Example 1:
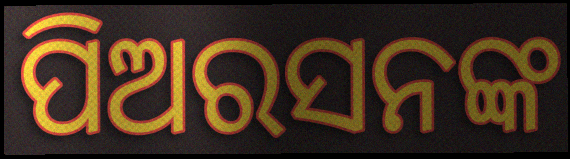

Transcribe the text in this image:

ପିଅରସନଙ୍କ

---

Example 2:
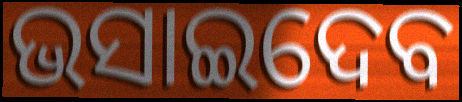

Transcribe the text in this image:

ଭସାଇଦେବ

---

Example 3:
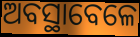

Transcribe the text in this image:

ଅବସ୍ଥାବେଳେ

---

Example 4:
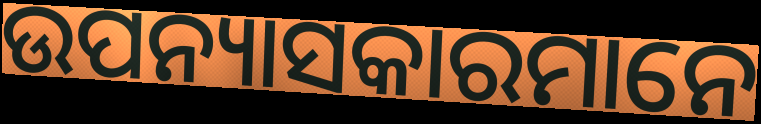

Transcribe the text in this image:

ଉପନ୍ୟାସକାରମାନେ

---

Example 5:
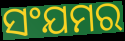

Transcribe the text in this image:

ସଂଯମର